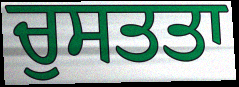
ਚੁਸਤਤਾ